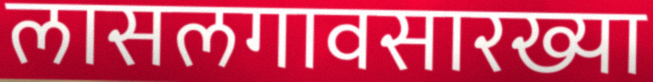
लासलगावसारख्या